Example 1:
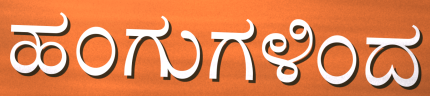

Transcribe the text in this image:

ಹಂಗುಗಳಿಂದ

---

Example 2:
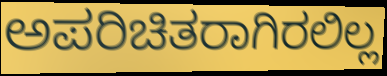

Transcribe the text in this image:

ಅಪರಿಚಿತರಾಗಿರಲಿಲ್ಲ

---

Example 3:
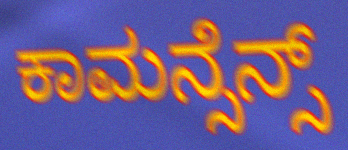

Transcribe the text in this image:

ಕಾಮನ್ಸೆನ್ಸ್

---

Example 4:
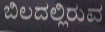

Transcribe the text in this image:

ಬಿಲದಲ್ಲಿರುವ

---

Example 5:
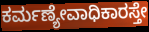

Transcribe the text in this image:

ಕರ್ಮಣ್ಯೇವಾಧಿಕಾರಸ್ತೇ